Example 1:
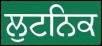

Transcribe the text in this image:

ਲੁਟਨਿਕ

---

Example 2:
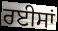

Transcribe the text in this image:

ਰਈਸਾਂ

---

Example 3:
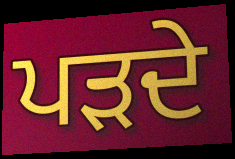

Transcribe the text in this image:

ਪੜਦੇ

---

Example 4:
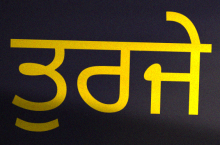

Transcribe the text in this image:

ਤੁਰਜੇ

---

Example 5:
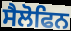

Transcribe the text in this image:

ਸੈਲੋਫਿਨ